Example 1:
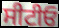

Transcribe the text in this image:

ਸੀਟੀਓ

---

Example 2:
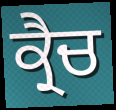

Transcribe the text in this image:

ਕ੍ਰੈਚ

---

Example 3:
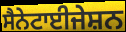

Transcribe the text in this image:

ਸੈਨੇਟਾਈਜੇਸ਼ਨ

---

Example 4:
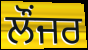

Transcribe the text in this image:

ਲੌਂਜਰ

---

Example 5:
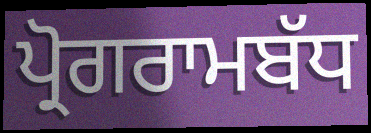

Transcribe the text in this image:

ਪ੍ਰੋਗਰਾਮਬੱਧ